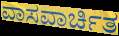
ವಾಸವಾರ್ಚಿತ